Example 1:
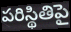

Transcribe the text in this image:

పరిస్థితిపై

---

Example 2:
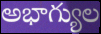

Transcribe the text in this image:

అభాగ్యుల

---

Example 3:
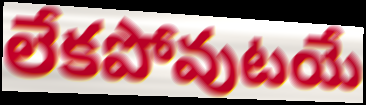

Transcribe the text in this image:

లేకపోవుటయే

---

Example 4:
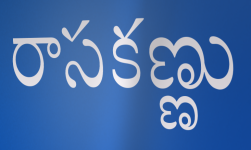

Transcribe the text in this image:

రాసకణ్ణు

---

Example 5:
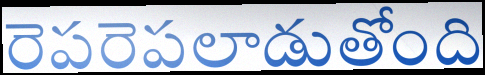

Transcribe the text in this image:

రెపరెపలాడుతోంది